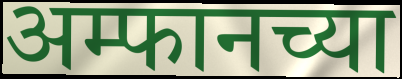
अम्फानच्या